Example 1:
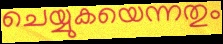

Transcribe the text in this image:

ചെയ്യുകയെന്നതും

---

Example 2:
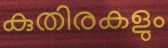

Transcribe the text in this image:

കുതിരകളും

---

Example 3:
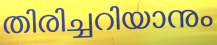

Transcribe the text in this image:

തിരിച്ചറിയാനും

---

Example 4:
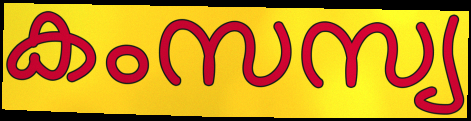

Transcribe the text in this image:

കംസസ്യ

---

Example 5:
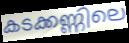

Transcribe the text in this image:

കടക്കണ്ണിലെ